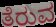
ತೆರುವ